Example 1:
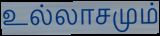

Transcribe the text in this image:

உல்லாசமும்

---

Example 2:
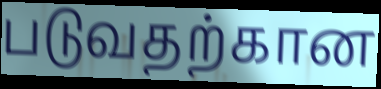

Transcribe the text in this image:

படுவதற்கான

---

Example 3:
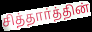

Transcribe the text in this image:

சித்தார்த்தின்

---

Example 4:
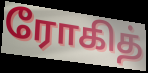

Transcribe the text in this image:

ரோகித்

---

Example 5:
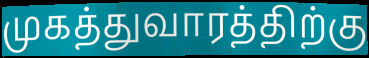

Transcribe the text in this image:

முகத்துவாரத்திற்கு